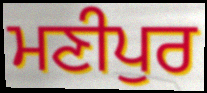
ਮਣੀਪੁਰ